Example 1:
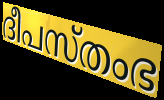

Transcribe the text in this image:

ദീപസ്തംഭ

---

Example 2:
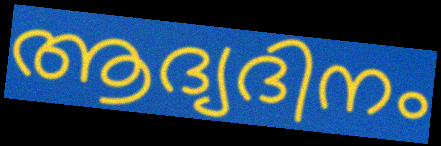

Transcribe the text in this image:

ആദ്യദിനം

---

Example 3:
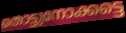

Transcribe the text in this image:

തൊട്ടുനോക്കട്ടെ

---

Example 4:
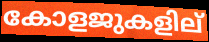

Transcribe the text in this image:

കോളജുകളില്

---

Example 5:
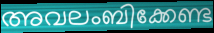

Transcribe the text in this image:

അവലംബിക്കേണ്ട